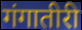
गंगातीरी